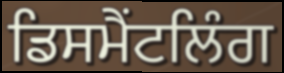
ਡਿਸਮੈਂਟਲਿੰਗ